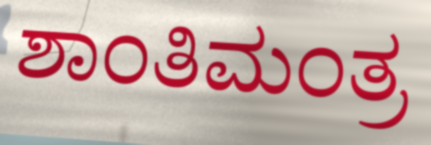
ಶಾಂತಿಮಂತ್ರ